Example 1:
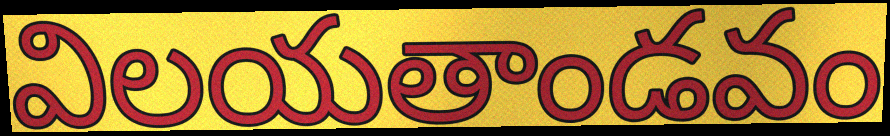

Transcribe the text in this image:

విలయతాండవం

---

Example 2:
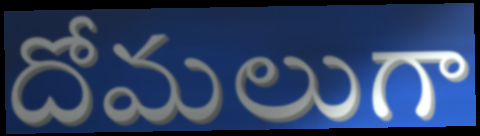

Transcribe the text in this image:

దోమలుగా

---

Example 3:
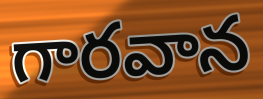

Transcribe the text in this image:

గారవాన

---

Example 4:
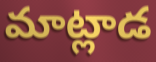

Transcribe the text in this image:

మాట్లాడ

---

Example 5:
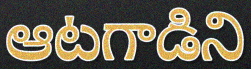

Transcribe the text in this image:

ఆటగాడిని